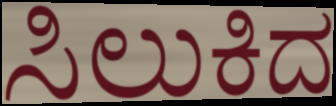
ಸಿಲುಕಿದ